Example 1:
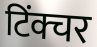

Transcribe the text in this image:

टिंक्चर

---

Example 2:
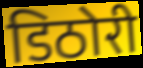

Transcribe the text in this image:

डिठोरी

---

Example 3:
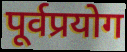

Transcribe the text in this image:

पूर्वप्रयोग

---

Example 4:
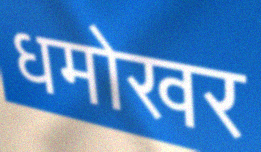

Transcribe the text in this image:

धमोखर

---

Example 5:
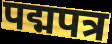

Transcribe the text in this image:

पद्मपत्र